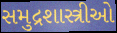
સમુદ્રશાસ્ત્રીઓ